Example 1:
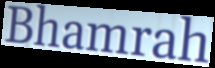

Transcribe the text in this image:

Bhamrah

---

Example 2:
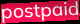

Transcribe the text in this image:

postpaid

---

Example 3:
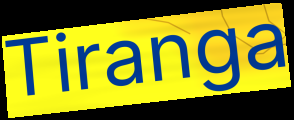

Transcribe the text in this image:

Tiranga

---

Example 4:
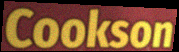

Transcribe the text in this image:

Cookson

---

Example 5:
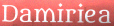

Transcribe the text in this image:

Damiriea